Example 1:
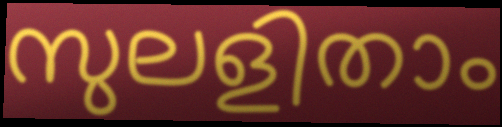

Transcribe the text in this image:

സുലളിതാം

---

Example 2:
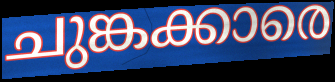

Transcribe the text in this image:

ചുങ്കക്കാരെ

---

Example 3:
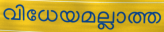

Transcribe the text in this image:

വിധേയമല്ലാത്ത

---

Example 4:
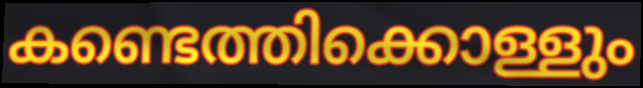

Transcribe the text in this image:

കണ്ടെത്തിക്കൊള്ളും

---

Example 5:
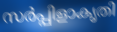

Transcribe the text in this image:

സർപ്പിളാകൃതി